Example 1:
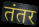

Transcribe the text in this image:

तंतर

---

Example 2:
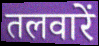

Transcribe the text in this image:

तलवारें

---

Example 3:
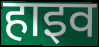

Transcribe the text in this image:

हाइव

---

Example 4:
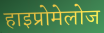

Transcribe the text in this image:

हाइप्रोमेलोज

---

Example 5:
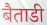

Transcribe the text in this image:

बैताडी